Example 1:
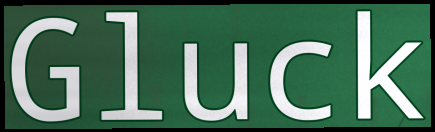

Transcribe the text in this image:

Gluck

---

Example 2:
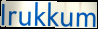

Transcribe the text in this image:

Irukkum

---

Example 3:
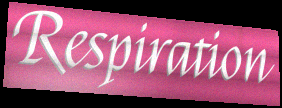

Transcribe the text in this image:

Respiration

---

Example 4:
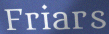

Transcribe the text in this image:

Friars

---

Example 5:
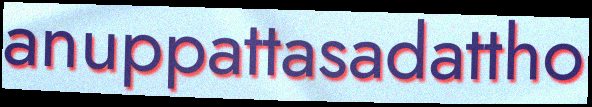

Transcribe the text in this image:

anuppattasadattho